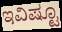
ಇವಿಷ್ಟೂ